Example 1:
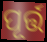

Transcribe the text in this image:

ପୂର୍ତ୍ତ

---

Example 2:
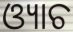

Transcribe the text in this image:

ଓ୍ୟାଚ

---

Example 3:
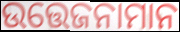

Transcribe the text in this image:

ଉତ୍ତେଜନାମାନ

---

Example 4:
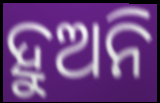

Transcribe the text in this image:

ହୁଅନି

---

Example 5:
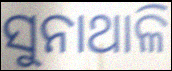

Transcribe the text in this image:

ସୁନାଥାଳି